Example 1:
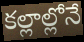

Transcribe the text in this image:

కల్లాల్లోనే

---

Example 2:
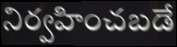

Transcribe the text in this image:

నిర్వహించబడే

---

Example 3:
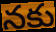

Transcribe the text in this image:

నకు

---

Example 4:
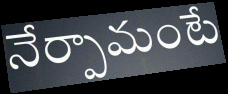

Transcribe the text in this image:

నేర్పామంటే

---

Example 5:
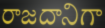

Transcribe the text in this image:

రాజదానిగా